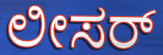
ಲೀಸರ್